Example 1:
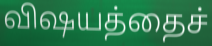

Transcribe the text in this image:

விஷயத்தைச்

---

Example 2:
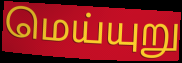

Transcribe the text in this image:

மெய்யுறு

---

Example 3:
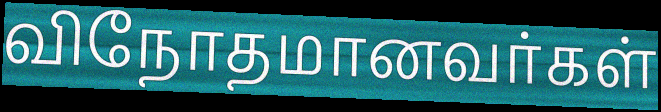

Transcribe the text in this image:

விநோதமானவர்கள்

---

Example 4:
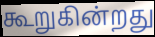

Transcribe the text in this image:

கூறுகின்றது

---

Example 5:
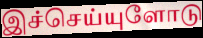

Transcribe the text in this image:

இச்செய்யுளோடு